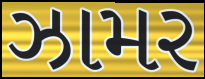
ઝામર